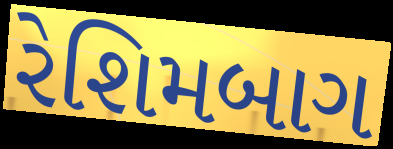
રેશિમબાગ